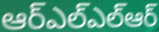
ఆర్ఎల్ఎల్ఆర్